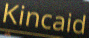
Kincaid